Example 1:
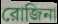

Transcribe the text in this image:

রোজিনা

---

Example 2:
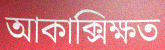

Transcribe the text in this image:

আকাক্সিক্ষত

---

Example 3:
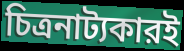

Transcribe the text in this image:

চিত্রনাট্যকারই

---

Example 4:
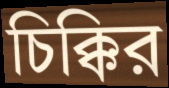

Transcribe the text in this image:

চিক্কির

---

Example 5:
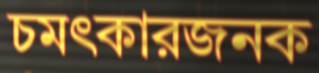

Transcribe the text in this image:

চমৎকারজনক